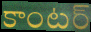
కాంటర్